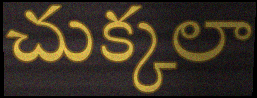
చుక్కలా